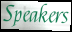
Speakers